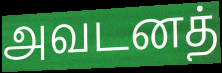
அவடனத்